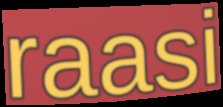
raasi